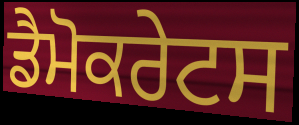
ਡੈਮੋਕਰੇਟਸ